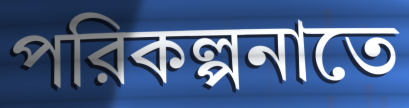
পরিকল্পনাতে